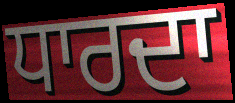
ਧਾਰਦਾ